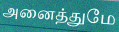
அனைத்துமே